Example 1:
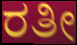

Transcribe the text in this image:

ರತೀ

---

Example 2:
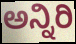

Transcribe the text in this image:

ಅನ್ನಿರಿ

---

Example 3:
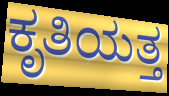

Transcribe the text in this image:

ಕೃತಿಯತ್ತ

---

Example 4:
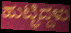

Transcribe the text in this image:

ಹುಟ್ಟಿದ್ದಳು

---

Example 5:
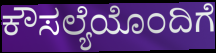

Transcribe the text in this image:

ಕೌಸಲ್ಯೆಯೊಂದಿಗೆ